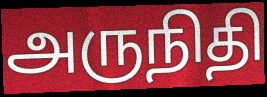
அருநிதி